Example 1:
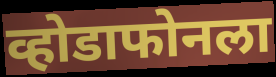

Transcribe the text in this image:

व्होडाफोनला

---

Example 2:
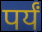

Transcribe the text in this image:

पर्यं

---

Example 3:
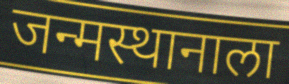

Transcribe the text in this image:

जन्मस्थानाला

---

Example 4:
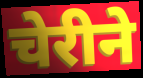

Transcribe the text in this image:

चेरीने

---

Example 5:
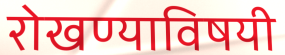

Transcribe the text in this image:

रोखण्याविषयी